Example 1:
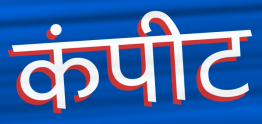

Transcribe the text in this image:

कंपीट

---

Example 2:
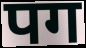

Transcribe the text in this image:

पग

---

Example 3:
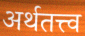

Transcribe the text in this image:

अर्थतत्त्व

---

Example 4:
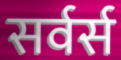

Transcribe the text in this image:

सर्वर्स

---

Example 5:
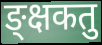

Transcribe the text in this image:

ङ्क्षकतु